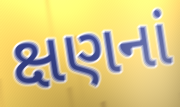
ક્ષણનાં